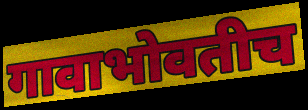
गावाभोवतीच